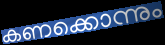
കണക്കൊന്നും